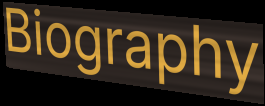
Biography